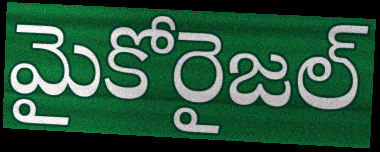
మైకోరైజల్